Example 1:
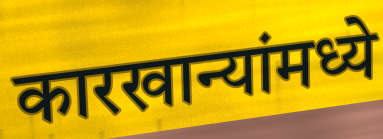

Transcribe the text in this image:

कारखान्यांमध्ये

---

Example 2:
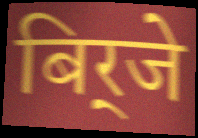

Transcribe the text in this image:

बिर्जे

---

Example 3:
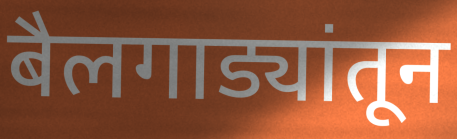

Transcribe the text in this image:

बैलगाड्यांतून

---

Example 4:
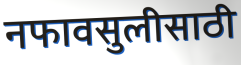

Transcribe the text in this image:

नफावसुलीसाठी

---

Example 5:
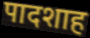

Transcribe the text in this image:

पादशाह